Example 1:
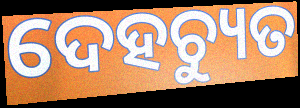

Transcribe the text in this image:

ଦେହଚ୍ୟୁତ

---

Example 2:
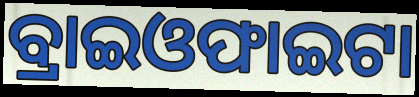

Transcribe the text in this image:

ବ୍ରାଇଓଫାଇଟା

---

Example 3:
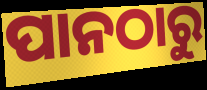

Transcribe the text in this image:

ପାନଠାରୁ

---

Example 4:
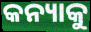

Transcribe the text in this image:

କନ୍ୟାକୁ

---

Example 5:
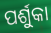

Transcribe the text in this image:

ପର୍ଶୁକା